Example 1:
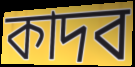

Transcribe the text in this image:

কাদব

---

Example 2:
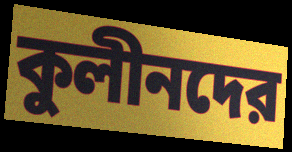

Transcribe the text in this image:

কুলীনদের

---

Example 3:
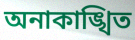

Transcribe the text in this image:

অনাকাঙ্খিত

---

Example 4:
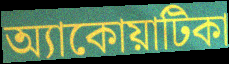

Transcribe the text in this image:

অ্যাকোয়াটিকা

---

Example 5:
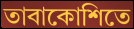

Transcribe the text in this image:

তাবাকোশিতে